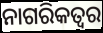
ନାଗରିକତ୍ୱର